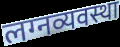
लग्नव्यवस्था